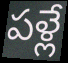
పళ్లే